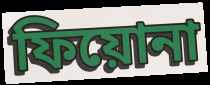
ফিয়োনা